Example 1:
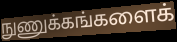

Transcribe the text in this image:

நுணுக்கங்களைக்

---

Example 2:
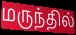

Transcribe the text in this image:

மருந்தில்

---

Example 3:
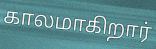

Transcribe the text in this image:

காலமாகிறார்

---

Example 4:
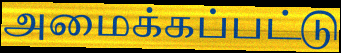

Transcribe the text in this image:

அமைக்கப்பட்டு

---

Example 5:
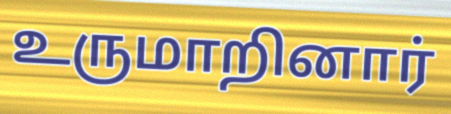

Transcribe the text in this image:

உருமாறினார்